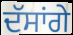
ਦੱਸਾਂਗੇ